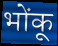
भोंकू